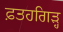
ਫ਼ਤਹਗਿੜ੍ਹ